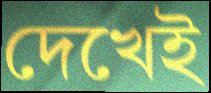
দেখেই